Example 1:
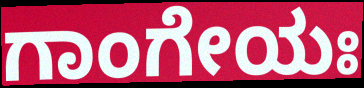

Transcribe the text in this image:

ಗಾಂಗೇಯಃ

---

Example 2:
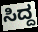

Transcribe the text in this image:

ಸಿದ್ದ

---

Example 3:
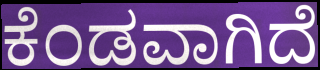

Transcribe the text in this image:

ಕೆಂಡವಾಗಿದೆ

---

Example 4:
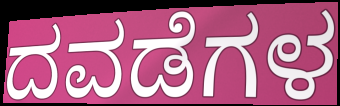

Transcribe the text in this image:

ದವಡೆಗಳ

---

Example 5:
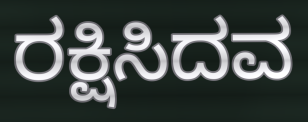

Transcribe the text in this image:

ರಕ್ಷಿಸಿದವ